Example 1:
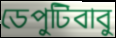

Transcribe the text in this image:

ডেপুটিবাবু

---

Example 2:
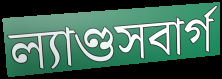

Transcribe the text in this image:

ল্যাণ্ডসবার্গ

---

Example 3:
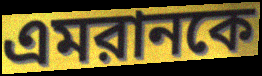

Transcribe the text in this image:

এমরানকে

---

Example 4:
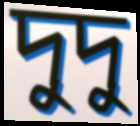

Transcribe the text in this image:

দুদু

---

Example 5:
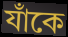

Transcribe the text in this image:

যাঁকে